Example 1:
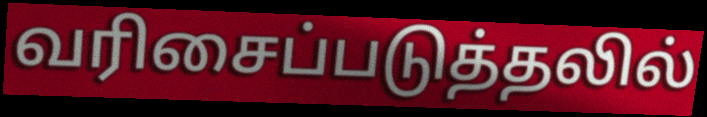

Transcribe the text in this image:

வரிசைப்படுத்தலில்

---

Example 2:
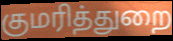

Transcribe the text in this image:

குமரித்துறை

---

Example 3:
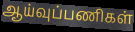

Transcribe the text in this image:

ஆய்வுப்பணிகள்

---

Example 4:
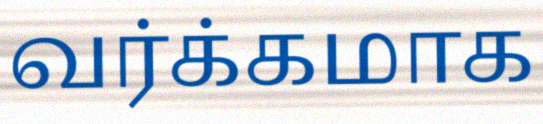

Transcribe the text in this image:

வர்க்கமாக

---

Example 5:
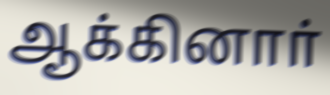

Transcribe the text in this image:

ஆக்கினார்